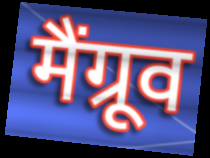
मैंग्रूव